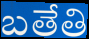
బతేతి